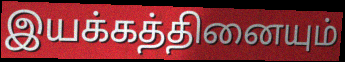
இயக்கத்தினையும்